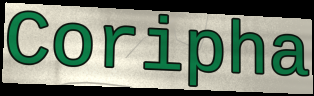
Coripha